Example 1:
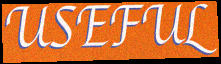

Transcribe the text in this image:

USEFUL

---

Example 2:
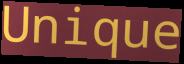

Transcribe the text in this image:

Unique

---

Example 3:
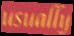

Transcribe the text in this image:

usually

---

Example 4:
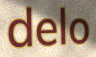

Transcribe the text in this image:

delo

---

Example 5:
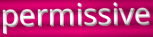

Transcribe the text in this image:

permissive